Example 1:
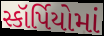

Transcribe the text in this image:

સ્કૉર્પિયોમાં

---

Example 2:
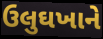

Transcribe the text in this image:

ઉલુઘખાને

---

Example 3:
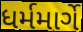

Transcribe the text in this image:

ધર્મમાર્ગે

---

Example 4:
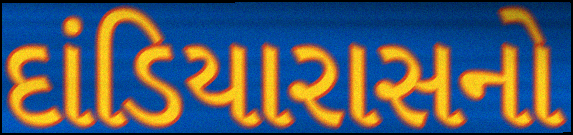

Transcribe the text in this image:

દાંડિયારાસનો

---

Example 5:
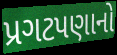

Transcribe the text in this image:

પ્રગટપણાનો